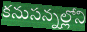
కనుసన్నల్లోని